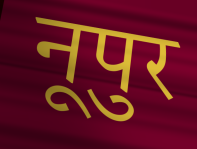
नूपुर